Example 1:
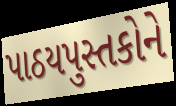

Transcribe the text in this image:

પાઠયપુસ્તકોને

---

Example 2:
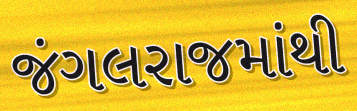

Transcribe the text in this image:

જંગલરાજમાંથી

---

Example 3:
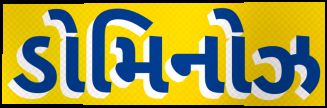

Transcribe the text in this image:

ડોમિનોઝ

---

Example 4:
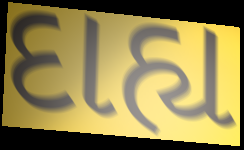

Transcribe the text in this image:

દાહ્ય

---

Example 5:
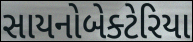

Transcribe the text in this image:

સાયનોબેક્ટેરિયા